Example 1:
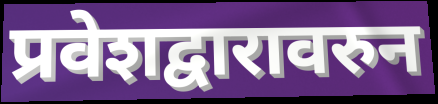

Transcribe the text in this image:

प्रवेशद्वारावरुन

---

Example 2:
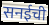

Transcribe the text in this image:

सनईची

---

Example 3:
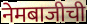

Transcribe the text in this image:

नेमबाजीची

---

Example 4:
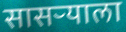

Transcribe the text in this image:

सासऱ्याला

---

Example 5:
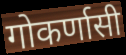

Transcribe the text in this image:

गोकर्णासी